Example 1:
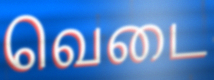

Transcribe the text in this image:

வெடை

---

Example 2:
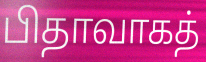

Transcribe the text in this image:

பிதாவாகத்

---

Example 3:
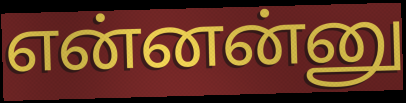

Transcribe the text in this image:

என்னன்னு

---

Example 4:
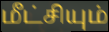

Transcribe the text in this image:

மீட்சியும்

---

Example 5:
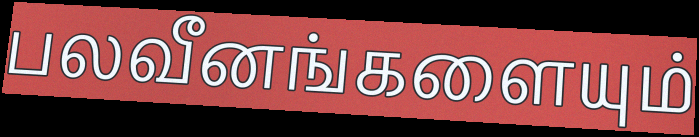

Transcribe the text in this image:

பலவீனங்களையும்